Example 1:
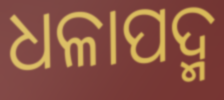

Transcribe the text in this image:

ଧଳାପଦ୍ମ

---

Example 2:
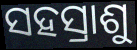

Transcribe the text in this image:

ସହସ୍ରାଶୁ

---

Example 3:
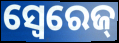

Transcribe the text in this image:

ସ୍ବେରେଜ୍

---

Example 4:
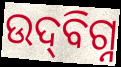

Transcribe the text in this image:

ଉଦ୍‍ବିଗ୍ନ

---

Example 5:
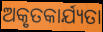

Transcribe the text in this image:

ଅକୃତକାର୍ଯ୍ୟତା